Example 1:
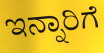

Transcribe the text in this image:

ಇನ್ನಾರಿಗೆ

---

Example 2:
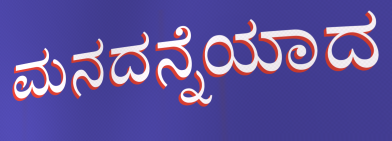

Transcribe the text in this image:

ಮನದನ್ನೆಯಾದ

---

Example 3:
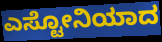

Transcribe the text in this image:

ಎಸ್ಟೋನಿಯಾದ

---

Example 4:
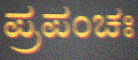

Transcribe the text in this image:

ಪ್ರಪಂಚಃ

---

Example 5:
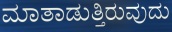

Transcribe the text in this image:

ಮಾತಾಡುತ್ತಿರುವುದು